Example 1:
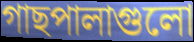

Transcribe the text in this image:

গাছপালাগুলো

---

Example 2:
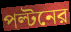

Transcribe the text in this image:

পল্টনের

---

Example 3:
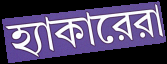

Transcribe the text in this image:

হ্যাকারেরা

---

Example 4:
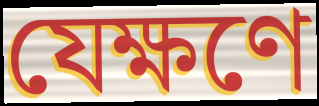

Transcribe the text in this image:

যেক্ষণে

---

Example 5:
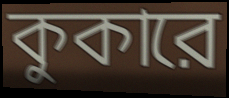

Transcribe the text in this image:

কুকারে